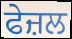
ਫੇਜ਼ਲ